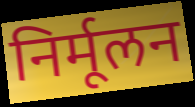
निर्मूलन